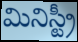
మినిస్ట్రీ